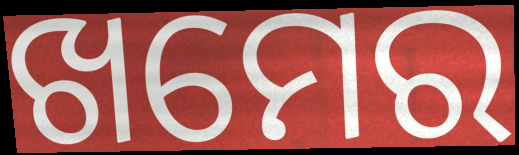
ଖମେର